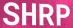
SHRP